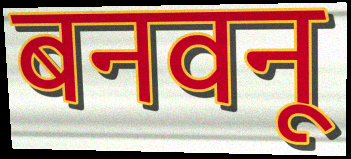
बनवनू